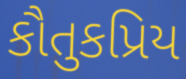
કૌતુકપ્રિય